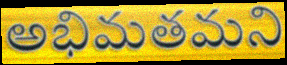
అభిమతమని